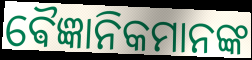
ଵୈଜ୍ଞାନିକମାନଙ୍କ